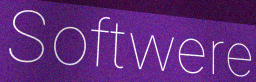
Softwere